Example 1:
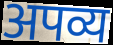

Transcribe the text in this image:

अपव्य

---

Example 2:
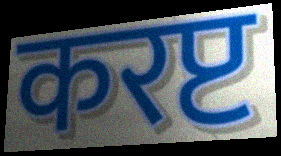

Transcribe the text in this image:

करप्ट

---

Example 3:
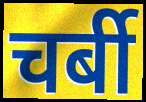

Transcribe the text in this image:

चर्बी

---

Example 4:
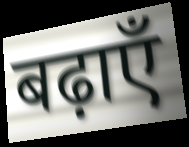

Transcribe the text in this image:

बढ़ाएँ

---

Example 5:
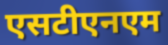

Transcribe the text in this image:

एसटीएनएम